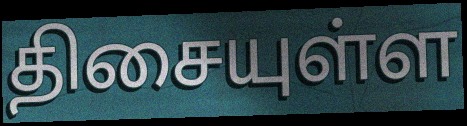
திசையுள்ள